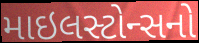
માઇલસ્ટોન્સનો